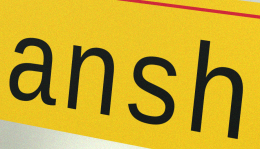
ansh